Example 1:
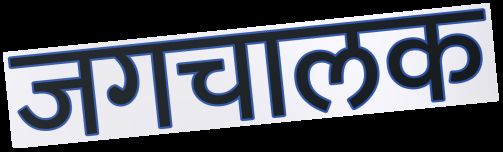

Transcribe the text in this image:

जगचालक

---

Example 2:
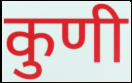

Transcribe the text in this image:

कुणी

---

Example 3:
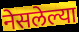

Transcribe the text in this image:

नेसलेल्या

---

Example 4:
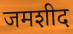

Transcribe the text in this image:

जमशीद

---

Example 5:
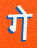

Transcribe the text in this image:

गे